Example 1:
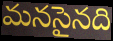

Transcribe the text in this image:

మనసైనది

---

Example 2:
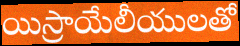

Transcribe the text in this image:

యిస్రాయేలీయులతో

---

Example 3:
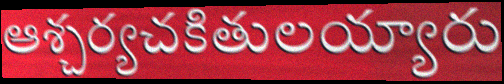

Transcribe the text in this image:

ఆశ్చర్యచకితులయ్యారు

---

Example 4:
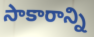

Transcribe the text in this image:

సాకారాన్ని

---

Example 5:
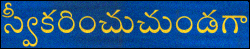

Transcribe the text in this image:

స్వీకరించుచుండగా